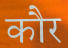
कौर